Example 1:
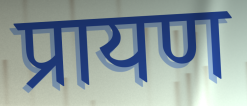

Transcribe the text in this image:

प्रायण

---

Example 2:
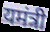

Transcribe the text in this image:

यमंत्री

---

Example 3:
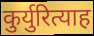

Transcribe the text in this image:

कुर्युरित्याह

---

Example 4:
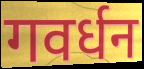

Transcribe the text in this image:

गवर्धन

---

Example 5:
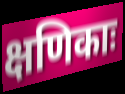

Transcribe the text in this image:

क्षणिकाः